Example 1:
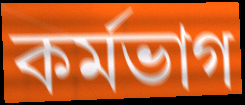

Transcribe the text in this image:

কৰ্মভাগ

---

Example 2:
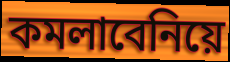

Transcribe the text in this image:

কমলাবেনিয়ে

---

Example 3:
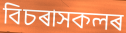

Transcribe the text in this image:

বিচৰাসকলৰ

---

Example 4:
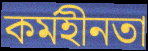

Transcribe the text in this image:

কৰ্মহীনতা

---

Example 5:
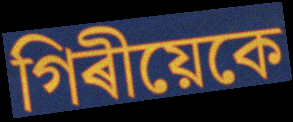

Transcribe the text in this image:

গিৰীয়েকে